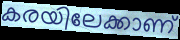
കരയിലേക്കാണ്